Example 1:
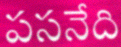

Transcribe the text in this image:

పసనేది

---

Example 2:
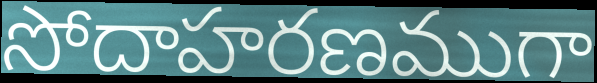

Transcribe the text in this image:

సోదాహరణముగా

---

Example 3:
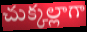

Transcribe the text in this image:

చుక్కల్లాగా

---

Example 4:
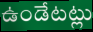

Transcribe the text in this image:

ఉండేటట్లు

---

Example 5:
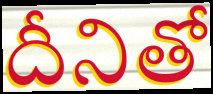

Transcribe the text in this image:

దీనితో